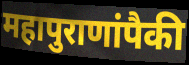
महापुराणांपैकी